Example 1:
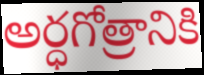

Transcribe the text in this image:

అర్ధగోత్రానికి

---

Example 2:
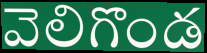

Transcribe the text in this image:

వెలిగొండ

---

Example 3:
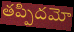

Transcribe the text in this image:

తప్పిదమో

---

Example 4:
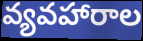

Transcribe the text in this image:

వ్యవహారాల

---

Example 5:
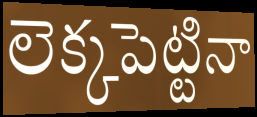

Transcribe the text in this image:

లెక్కపెట్టినా